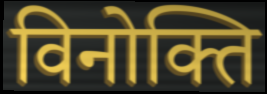
विनोक्ति